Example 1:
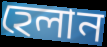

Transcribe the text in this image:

হেলান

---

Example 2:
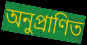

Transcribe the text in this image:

অনুপ্ৰাণিত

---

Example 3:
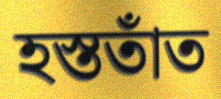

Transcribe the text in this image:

হস্ততাঁত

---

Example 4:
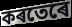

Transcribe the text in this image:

কৰতেৰে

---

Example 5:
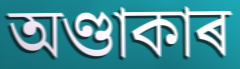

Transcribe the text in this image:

অণ্ডাকাৰ